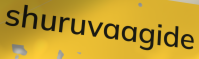
shuruvaagide